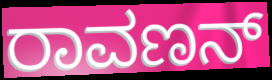
ರಾವಣನ್